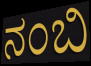
ನಂಬಿ